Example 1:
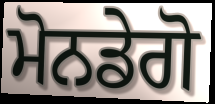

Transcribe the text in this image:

ਮੋਨਡੇਗੋ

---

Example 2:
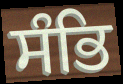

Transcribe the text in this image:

ਸੰਭਿ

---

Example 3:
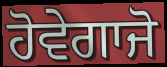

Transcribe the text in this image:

ਹੋਵੇਗਾਜੋ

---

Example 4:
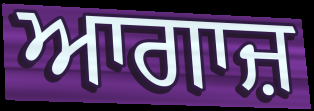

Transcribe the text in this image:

ਆਗਾਜ਼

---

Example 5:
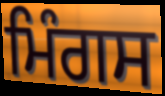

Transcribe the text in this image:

ਮਿੰਗਸ